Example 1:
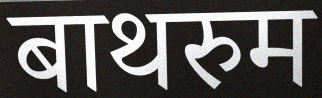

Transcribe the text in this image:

बाथरुम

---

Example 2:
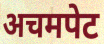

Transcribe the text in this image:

अचमपेट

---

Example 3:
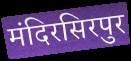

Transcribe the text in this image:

मंदिरसिरपुर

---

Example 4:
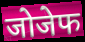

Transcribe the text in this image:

जोजेफ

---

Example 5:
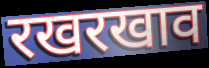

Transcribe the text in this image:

रखरखाव